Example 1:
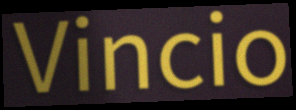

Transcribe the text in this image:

Vincio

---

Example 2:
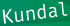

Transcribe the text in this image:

Kundal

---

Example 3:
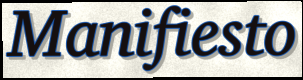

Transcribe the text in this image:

Manifiesto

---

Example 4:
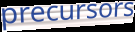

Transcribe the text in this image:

precursors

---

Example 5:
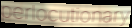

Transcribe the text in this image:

perlocutionary